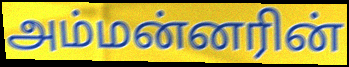
அம்மன்னரின்